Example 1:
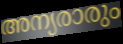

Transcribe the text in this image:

അന്യരാരും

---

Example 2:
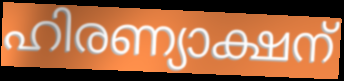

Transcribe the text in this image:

ഹിരണ്യാക്ഷന്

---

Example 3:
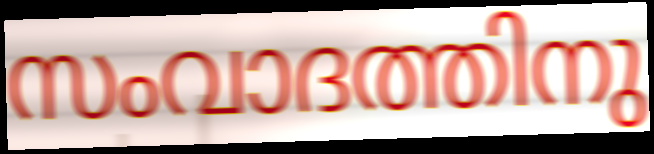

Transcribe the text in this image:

സംവാദത്തിനു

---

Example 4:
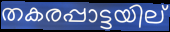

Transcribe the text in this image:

തകരപ്പാട്ടയില്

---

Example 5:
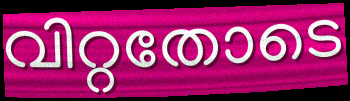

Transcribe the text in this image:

വിറ്റതോടെ